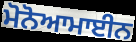
ਮੋਨੋਆਮਾਈਨ